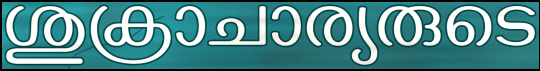
ശുക്രാചാര്യരുടെ